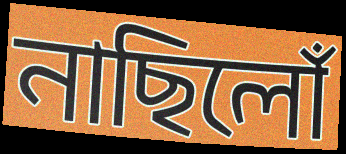
নাছিলোঁ